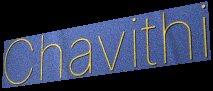
Chavithi